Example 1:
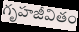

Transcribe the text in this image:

గృహజీవితం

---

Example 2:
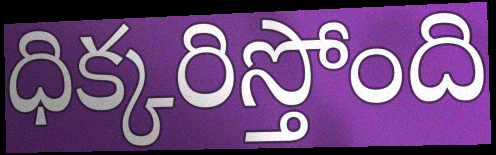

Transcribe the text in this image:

ధిక్కరిస్తోంది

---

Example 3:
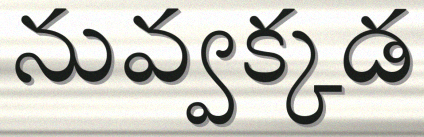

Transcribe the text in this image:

నువ్వక్కడ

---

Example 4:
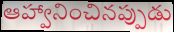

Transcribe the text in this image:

ఆహ్వానించినప్పుడు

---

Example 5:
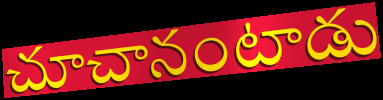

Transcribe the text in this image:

చూచానంటాడు